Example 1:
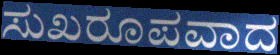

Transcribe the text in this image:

ಸುಖರೂಪವಾದ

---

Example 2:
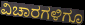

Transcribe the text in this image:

ವಿಚಾರಗಳಿಗೂ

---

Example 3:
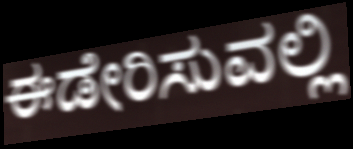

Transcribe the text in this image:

ಈಡೇರಿಸುವಲ್ಲಿ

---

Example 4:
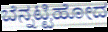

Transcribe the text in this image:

ಬೆನ್ನಟ್ಟಿಹೋದ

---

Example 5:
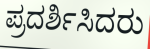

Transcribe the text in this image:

ಪ್ರದರ್ಶಿಸಿದರು